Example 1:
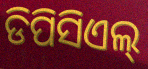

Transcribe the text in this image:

ଡିପିସିଏଲ୍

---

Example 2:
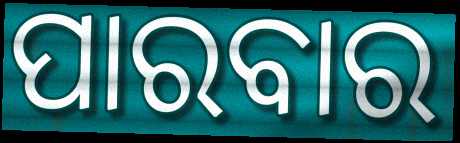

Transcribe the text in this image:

ପାରବାର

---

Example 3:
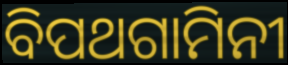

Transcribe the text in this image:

ବିପଥଗାମିନୀ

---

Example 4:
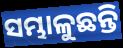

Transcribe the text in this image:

ସମ୍ଭାଳୁଛନ୍ତି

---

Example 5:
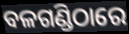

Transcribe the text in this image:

ବଳଗଣ୍ଡିଠାରେ